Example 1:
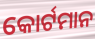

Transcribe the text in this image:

କୋର୍ଟମାନ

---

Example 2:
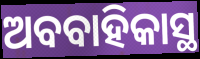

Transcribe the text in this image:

ଅବବାହିକାସ୍ଥ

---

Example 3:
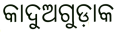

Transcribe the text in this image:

କାଦୁଅଗୁଡ଼ାକ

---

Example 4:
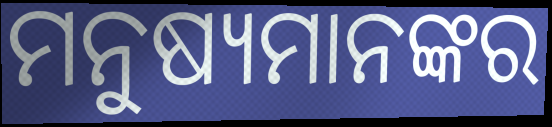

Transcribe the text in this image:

ମନୁଷ୍ୟମାନଙ୍କର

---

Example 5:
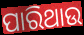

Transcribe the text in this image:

ପାରିଥାଉ